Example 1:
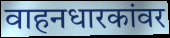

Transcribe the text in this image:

वाहनधारकांवर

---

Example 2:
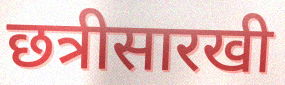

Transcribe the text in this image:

छत्रीसारखी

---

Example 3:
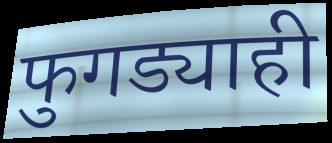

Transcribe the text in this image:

फुगड्याही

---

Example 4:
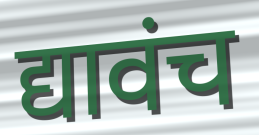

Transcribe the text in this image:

द्यावंच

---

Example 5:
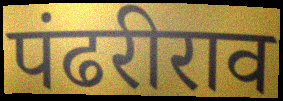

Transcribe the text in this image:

पंढरीराव